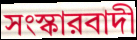
সংস্কারবাদী